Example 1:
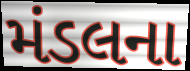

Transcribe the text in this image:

મંડલના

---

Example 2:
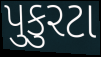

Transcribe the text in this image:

પુકુરટા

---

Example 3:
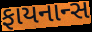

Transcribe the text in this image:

ફાયનાન્સ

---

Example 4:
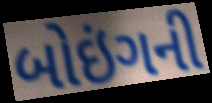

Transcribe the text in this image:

બોઇંગની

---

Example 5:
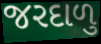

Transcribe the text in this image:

જરદાળુ